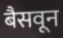
बैसवून